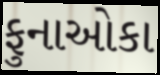
ફુનાઓકા